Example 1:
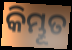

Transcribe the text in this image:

କିମ୍ଭୂତ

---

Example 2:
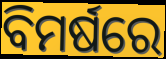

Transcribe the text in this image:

ବିମର୍ଷରେ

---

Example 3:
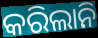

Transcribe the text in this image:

କରିଲାନି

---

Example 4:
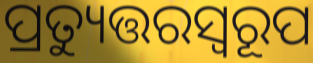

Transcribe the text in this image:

ପ୍ରତ୍ୟୁତ୍ତରସ୍ଵରୂପ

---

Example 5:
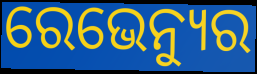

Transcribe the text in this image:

ରେଭେନ୍ୟୁର